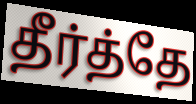
தீர்த்தே